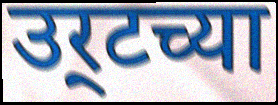
उर्टच्या